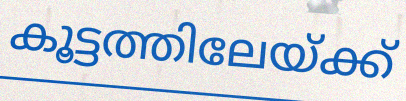
കൂട്ടത്തിലേയ്ക്ക്